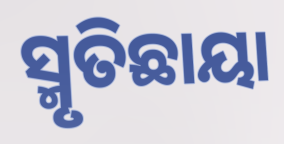
ସ୍ମୃତିଛାୟା